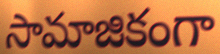
సామాజికంగా